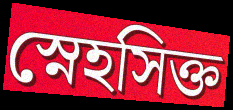
স্নেহসিক্ত